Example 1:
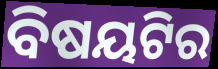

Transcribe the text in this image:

ବିଷୟଟିର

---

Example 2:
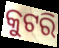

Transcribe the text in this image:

କୁଟରି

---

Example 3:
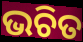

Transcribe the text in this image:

ଭଚିତ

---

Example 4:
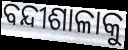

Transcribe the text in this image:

ବନ୍ଦୀଶାଳାକୁ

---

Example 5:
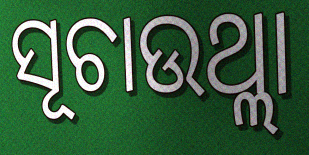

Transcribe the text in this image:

ସୂଚାଉଥ୍ଲା